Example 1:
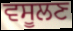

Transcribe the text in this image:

ਵਸੂਲਣ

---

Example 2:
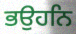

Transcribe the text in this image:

ਭਉਹਨਿ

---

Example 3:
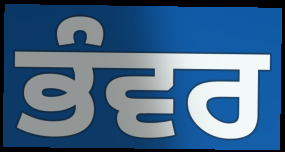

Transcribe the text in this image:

ਭੰਵਰ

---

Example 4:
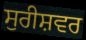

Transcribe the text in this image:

ਸੁਰੀਸ਼ਵਰ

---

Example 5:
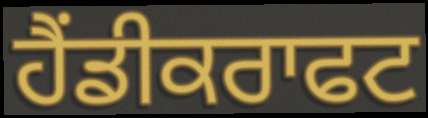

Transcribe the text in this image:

ਹੈਂਡੀਕਰਾਫਟ